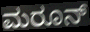
ಮರೂನ್